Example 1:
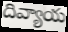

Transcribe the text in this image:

దివ్యాయ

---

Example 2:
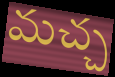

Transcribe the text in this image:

మచ్చ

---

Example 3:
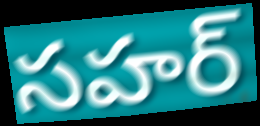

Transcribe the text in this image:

సహర్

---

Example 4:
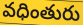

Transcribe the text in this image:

వధింతురు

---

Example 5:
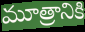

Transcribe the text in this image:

మూత్రానికి